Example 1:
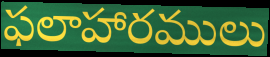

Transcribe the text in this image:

ఫలాహారములు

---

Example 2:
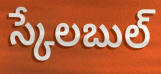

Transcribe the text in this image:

స్కేలబుల్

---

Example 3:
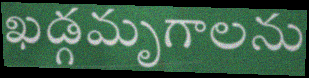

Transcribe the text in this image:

ఖడ్గమృగాలను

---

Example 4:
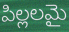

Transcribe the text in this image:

పిల్లలమై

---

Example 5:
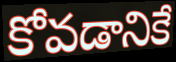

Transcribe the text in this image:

కోవడానికే